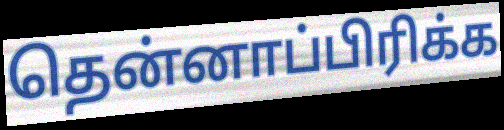
தென்னாப்பிரிக்க